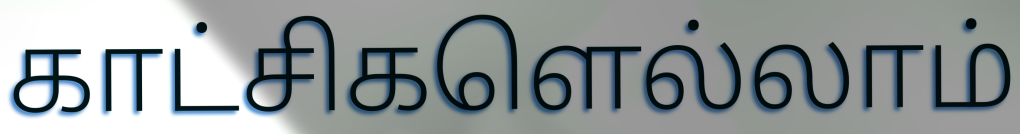
காட்சிகளெல்லாம்